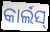
କାର୍ଲସ୍